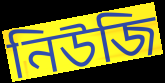
নিউজি